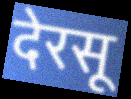
देरसू